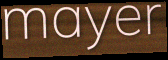
mayer